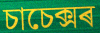
চাচেক্সৰ